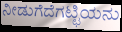
ನೀಡುಗೆದೆಗಟ್ಟಿಯನು